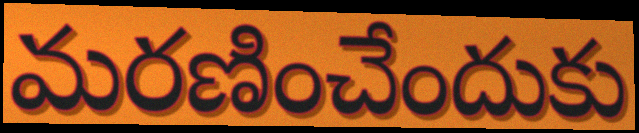
మరణించేందుకు